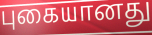
புகையானது